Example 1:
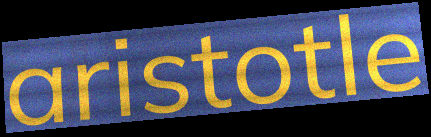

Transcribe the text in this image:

aristotle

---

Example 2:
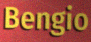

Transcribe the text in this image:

Bengio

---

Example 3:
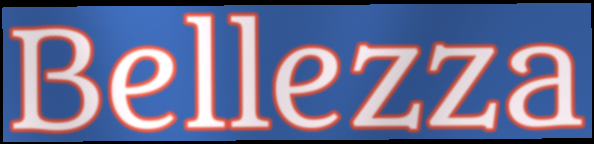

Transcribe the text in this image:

Bellezza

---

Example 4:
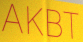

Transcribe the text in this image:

AKBT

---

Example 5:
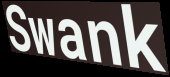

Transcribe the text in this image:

Swank